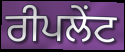
ਰੀਪਲੇਂਟ